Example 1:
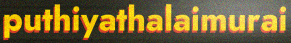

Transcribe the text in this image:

puthiyathalaimurai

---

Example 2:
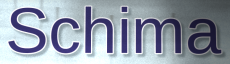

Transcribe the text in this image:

Schima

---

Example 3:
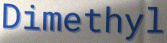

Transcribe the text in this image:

Dimethyl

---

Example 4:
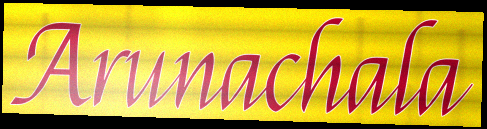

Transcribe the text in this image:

Arunachala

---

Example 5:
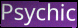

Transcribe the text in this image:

Psychic